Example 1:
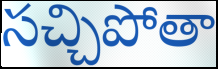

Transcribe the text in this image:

సచ్చిపోతా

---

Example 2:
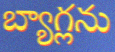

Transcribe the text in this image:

బ్యాగ్లను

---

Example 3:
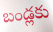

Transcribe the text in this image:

బండ్లకు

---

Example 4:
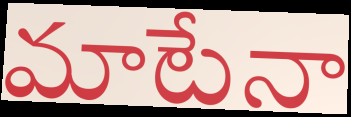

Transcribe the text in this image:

మాటేనా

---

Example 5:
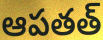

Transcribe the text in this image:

ఆపతత్